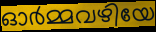
ഓർമ്മവഴിയേ